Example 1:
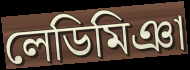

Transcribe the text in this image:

লেডিমিঞা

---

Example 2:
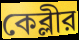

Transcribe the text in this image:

কেব্লীর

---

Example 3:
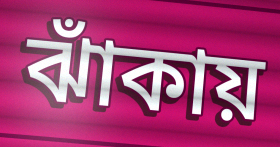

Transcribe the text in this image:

ঝাঁকায়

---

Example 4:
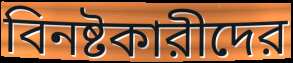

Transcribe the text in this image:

বিনষ্টকারীদের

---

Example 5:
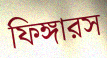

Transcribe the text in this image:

ফিঙ্গারস